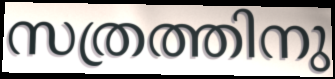
സത്രത്തിനു